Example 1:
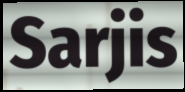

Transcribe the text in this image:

Sarjis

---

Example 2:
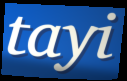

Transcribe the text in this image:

tayi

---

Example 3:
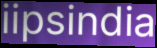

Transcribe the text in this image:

iipsindia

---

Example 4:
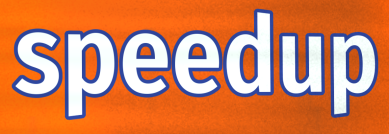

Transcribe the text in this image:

speedup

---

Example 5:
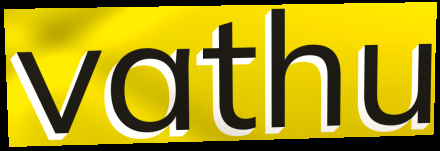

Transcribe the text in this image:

vathu